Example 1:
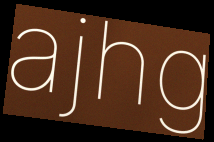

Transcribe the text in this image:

ajhg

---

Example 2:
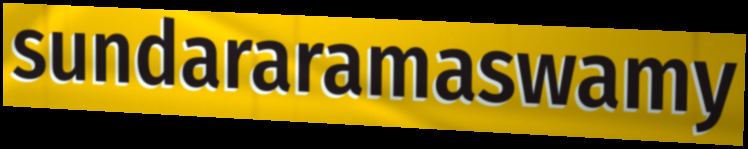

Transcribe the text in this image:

sundararamaswamy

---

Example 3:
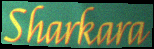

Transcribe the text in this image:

Sharkara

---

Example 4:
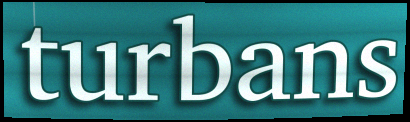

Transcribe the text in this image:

turbans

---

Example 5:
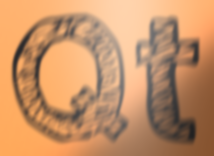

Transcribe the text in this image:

Qt